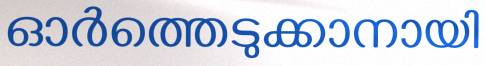
ഓർത്തെടുക്കാനായി